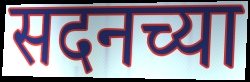
सदनच्या